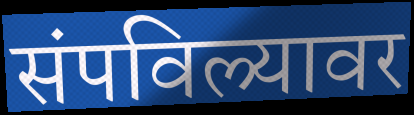
संपविल्यावर